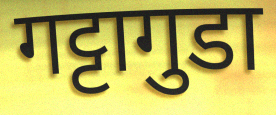
गट्टागुडा